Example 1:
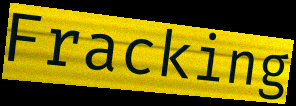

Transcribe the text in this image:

Fracking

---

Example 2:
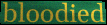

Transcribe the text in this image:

bloodied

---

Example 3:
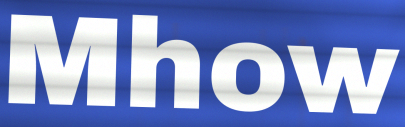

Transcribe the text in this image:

Mhow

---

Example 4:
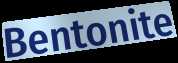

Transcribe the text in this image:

Bentonite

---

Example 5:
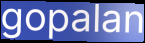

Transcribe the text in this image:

gopalan